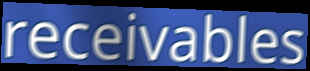
receivables